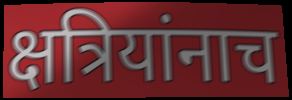
क्षत्रियांनाच